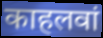
काहलवां